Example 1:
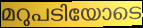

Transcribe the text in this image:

മറുപടിയോടെ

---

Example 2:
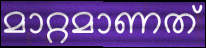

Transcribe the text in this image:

മാറ്റമാണത്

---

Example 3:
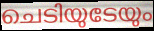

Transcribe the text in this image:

ചെടിയുടേയും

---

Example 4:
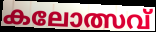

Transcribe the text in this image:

കലോത്സവ്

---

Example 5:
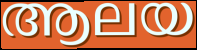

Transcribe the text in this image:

ആലയ